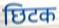
छिटक